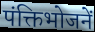
पंक्तिभोजनें